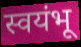
स्वयंभू